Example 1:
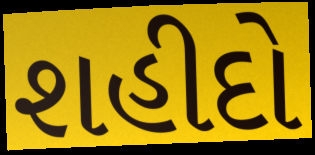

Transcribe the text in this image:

શહીદો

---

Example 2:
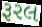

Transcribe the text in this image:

રૂરલ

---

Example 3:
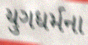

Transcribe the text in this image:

યુગધર્મના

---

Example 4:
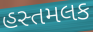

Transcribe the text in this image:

હસ્તમલક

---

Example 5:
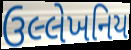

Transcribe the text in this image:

ઉલ્લેખનિય